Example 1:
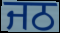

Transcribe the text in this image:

ਜਠ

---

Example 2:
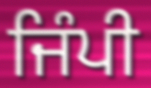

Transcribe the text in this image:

ਜਿੰਪੀ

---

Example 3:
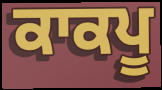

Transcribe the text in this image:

ਕਾਕਪੂ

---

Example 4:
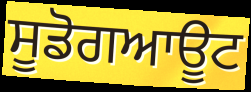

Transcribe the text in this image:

ਸੂਡੋਗਆਊਟ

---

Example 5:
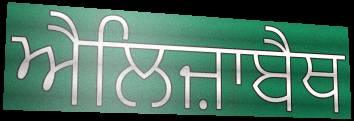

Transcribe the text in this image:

ਐਲਿਜ਼ਾਬੈਥ